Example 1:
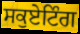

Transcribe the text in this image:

ਸਕੁਏਟਿੰਗ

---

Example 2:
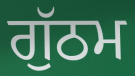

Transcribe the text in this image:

ਗੁੱਠਮ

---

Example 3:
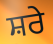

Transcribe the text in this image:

ਸ਼ਰੇ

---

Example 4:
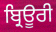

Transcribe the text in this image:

ਬ੍ਰਿਊਰੀ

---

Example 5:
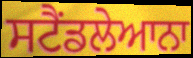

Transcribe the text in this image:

ਸਟੈਂਡਲੇਆਨਾ